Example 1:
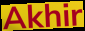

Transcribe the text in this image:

Akhir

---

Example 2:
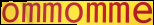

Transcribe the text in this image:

ommomme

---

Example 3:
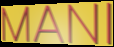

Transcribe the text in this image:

MANI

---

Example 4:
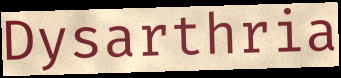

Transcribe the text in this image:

Dysarthria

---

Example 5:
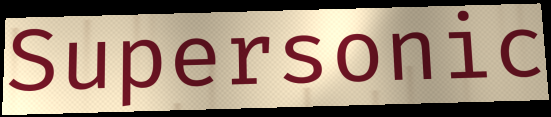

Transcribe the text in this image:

Supersonic